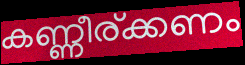
കണ്ണീര്ക്കണം